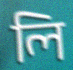
লি